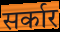
सर्कार